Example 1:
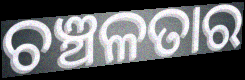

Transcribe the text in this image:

ଚଞ୍ଚଳତାର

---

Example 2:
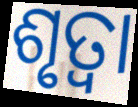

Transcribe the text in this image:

ଶୃତ୍ୱା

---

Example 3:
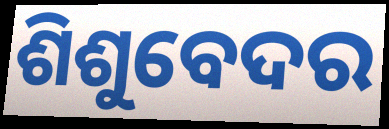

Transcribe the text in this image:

ଶିଶୁବେଦର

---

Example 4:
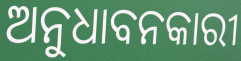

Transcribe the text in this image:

ଅନୁଧାବନକାରୀ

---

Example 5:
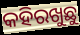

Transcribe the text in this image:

କହିରଖୁଛୁ